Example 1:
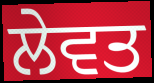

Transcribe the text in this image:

ਲੇਵਤ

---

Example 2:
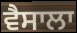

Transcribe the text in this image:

ਵੈਸਾਲਾ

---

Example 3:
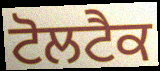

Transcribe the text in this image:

ਟੋਲਟੈਕ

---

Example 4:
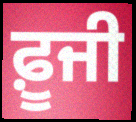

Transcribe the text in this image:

ਫ਼ੂਜੀ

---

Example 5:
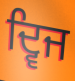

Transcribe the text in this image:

ਦ੍ਵਿਜ